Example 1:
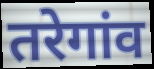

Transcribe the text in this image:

तरेगांव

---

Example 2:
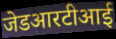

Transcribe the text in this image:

जेडआरटीआई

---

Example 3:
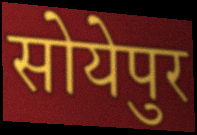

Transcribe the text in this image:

सोयेपुर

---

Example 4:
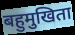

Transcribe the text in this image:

बहुमुखिता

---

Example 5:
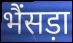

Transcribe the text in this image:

भैंसड़ा